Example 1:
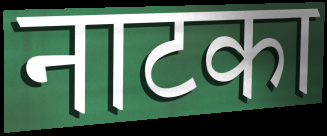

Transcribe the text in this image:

नाटका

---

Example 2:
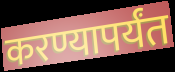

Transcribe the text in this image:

करण्यापर्यंत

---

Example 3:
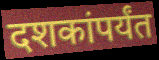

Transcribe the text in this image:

दशकांपर्यंत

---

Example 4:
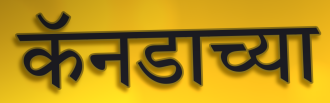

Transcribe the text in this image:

कॅनडाच्या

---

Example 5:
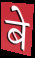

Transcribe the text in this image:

बे